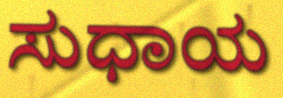
ಸುಧಾಯ